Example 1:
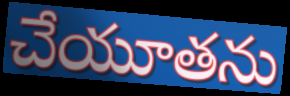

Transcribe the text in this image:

చేయూతను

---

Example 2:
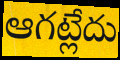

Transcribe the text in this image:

ఆగట్లేదు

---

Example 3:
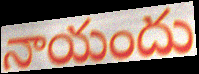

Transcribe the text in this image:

నాయందు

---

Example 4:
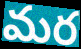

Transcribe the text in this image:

మర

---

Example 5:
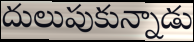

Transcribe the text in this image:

దులుపుకున్నాడు